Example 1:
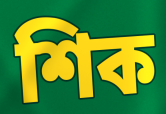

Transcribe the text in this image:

শিক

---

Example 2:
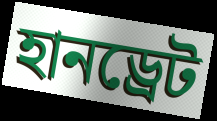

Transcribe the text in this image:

হানড্রেট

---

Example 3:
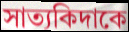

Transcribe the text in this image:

সাত্যকিদাকে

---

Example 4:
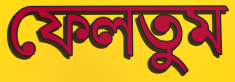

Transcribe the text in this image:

ফেলতুম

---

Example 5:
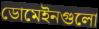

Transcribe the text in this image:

ডোমেইনগুলো